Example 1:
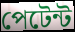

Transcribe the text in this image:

পেটেন্ট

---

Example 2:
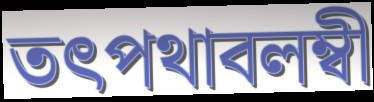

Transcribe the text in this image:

তৎপথাবলম্বী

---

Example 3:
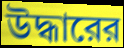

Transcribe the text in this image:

উদ্ধারের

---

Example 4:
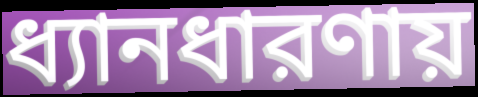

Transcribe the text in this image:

ধ্যানধারণায়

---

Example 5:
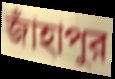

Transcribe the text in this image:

জাঁহাপুর